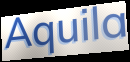
Aquila